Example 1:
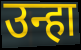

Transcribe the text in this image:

उन्हा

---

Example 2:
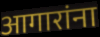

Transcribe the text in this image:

आगारांना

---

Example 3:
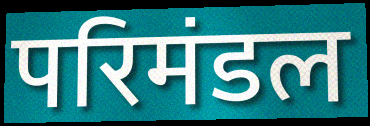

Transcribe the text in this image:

परिमंडल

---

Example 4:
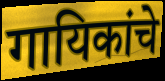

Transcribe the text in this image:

गायिकांचे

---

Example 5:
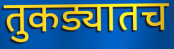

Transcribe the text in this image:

तुकड्यातच